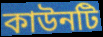
কাউনটি